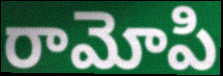
రామోపి